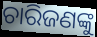
ଚାରିଜଣଙ୍କୁ